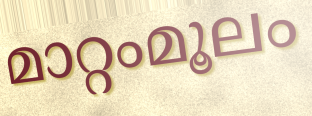
മാറ്റംമൂലം